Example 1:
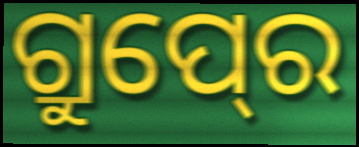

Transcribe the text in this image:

ଗ୍ରୁପ୍‍ରେ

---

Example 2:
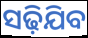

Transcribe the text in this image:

ସଢ଼ିଯିବ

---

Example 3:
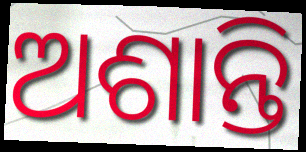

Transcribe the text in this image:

ଅଶାନ୍ତି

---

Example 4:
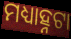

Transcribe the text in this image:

ମଧ୍ୟାହ୍ନଟା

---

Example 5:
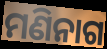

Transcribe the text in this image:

ମଣିନାଗ